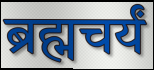
ब्रह्मचर्यं